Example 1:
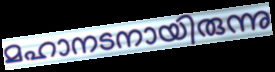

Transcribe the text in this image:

മഹാനടനായിരുന്നു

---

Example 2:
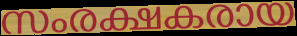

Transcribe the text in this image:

സംരക്ഷകരായ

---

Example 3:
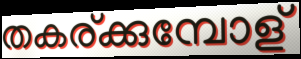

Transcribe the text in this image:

തകര്ക്കുമ്പോള്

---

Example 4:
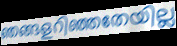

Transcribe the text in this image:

ഞങ്ങളറിഞ്ഞതേയില്ല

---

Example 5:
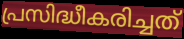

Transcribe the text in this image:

പ്രസിദ്ധീകരിച്ചത്